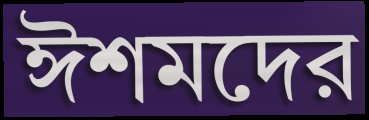
ঈশমদের